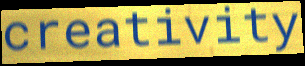
creativity